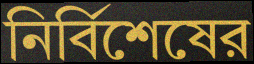
নির্বিশেষের